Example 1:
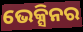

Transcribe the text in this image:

ଭେକ୍ସିନର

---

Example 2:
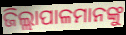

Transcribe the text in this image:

ଜିଲ୍ଲାପାଳମାନଙ୍କୁ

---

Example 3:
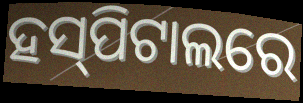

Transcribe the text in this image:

ହସ୍‌ପିଟାଲରେ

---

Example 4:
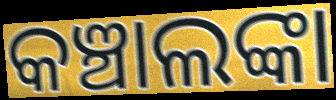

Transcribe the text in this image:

କଞ୍ଚାଲଙ୍କା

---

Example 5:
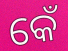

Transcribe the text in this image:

କେଁ